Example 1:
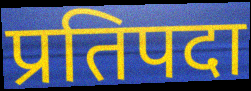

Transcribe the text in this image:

प्रतिपदा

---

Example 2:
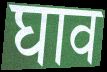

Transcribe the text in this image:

घाव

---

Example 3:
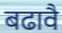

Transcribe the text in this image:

बढावै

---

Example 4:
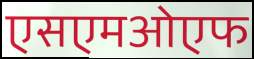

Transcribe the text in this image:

एसएमओएफ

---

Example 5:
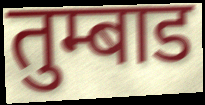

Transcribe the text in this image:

तुम्बाड